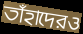
তাঁহাদেরও